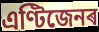
এণ্টিজেনৰ